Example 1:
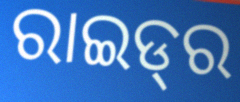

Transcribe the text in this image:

ରାଇଡ୍‌ର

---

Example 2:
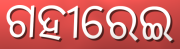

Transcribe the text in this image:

ଗହୀରେଇ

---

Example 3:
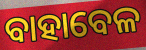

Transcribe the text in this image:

ବାହାବେଳ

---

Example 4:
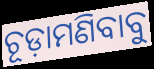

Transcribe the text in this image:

ଚୂଡ଼ାମଣିବାବୁ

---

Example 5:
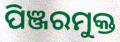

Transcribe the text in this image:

ପିଞ୍ଜରମୁକ୍ତ